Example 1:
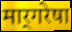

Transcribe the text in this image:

मार्गरेषा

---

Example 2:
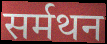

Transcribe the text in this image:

सर्मथन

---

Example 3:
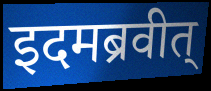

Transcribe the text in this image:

इदमब्रवीत्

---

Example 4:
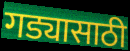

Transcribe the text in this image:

गड्यासाठी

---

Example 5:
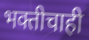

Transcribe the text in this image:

भक्तीचाही